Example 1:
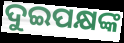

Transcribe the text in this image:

ଦୁଇପକ୍ଷଙ୍କ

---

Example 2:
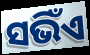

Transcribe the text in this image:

ସଭିଁଏ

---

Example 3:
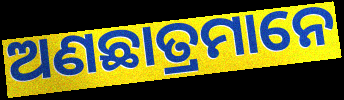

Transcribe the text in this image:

ଅଣଛାତ୍ରମାନେ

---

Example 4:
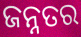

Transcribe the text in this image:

ଜନ୍ନତର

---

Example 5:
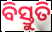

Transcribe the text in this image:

ବିସ୍ତୁତି